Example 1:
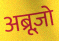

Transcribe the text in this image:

अब्रूज़ो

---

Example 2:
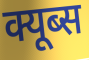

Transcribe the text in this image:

क्यूब्स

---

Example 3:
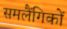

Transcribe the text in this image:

समलैंगिकों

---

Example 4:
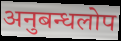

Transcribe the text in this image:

अनुबन्धलोप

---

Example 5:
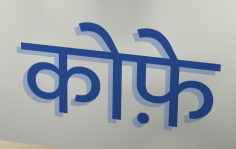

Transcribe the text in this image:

कोफ़े